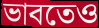
ভাবতেও